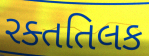
રક્તતિલક